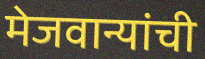
मेजवान्यांची